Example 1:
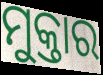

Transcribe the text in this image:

ମୁକ୍ତାର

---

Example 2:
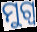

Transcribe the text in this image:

ମୁଗ୍ୱ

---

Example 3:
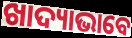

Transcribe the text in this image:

ଖାଦ୍ୟାଭାବେ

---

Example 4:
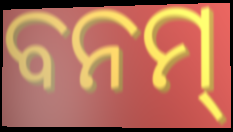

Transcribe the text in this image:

ବନମ୍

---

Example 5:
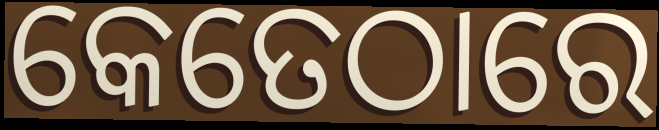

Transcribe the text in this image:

କେତେଠାରେ